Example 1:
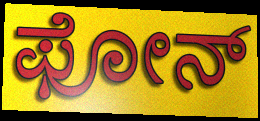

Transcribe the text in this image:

ಫೋನ್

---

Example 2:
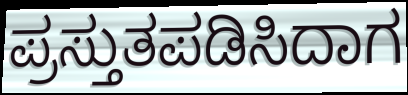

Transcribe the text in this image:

ಪ್ರಸ್ತುತಪಡಿಸಿದಾಗ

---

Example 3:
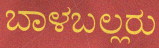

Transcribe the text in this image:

ಬಾಳಬಲ್ಲರು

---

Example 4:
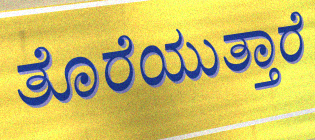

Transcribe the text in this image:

ತೊರೆಯುತ್ತಾರೆ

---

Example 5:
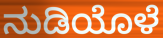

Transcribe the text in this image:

ನುಡಿಯೊಳೆ